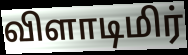
விளாடிமிர்